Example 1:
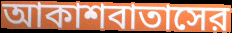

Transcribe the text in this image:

আকাশবাতাসের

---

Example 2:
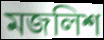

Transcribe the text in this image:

মজলিশ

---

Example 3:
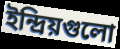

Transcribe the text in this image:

ইন্দ্রিয়গুলো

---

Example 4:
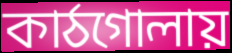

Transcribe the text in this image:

কাঠগোলায়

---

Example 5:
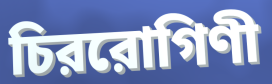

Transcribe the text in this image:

চিররোগিণী